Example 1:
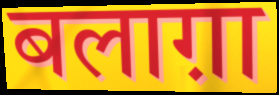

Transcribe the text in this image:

बलाग़ा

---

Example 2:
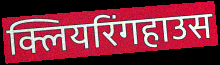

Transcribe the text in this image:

क्लियरिंगहाउस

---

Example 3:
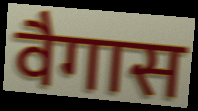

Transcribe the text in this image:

वैगास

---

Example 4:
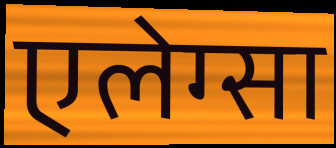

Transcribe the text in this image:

एलेग्सा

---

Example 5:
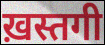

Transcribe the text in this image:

ख़स्तगी